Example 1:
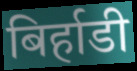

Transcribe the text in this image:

बिर्हाडी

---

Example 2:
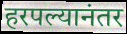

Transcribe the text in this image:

हरपल्यानंतर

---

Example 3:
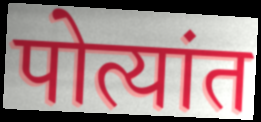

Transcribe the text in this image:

पोत्यांत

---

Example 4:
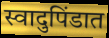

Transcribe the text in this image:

स्वादुपिंडात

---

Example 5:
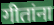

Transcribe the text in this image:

गीतांना